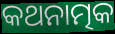
କଥନାତ୍ମକ